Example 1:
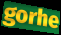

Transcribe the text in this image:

gorhe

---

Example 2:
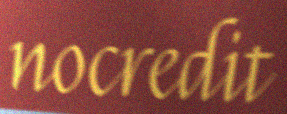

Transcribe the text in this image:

nocredit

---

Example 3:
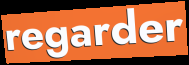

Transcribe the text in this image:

regarder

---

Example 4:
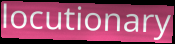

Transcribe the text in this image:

locutionary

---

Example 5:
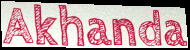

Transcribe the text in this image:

Akhanda